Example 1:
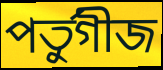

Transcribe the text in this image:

পৰ্তুগীজ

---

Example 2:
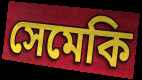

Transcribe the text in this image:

সেমেকি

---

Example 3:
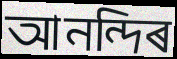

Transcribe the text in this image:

আনন্দিৰ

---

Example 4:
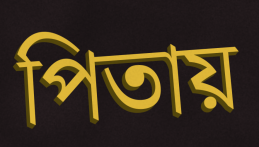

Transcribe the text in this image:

পিতায়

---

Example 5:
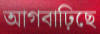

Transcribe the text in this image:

আগবাঢ়িছে